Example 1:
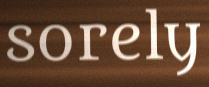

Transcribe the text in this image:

sorely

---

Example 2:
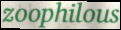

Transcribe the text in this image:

zoophilous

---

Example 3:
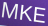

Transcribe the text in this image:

MKE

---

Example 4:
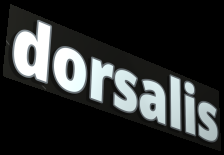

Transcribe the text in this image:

dorsalis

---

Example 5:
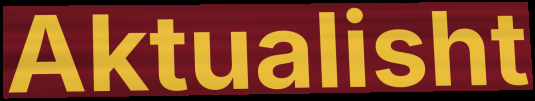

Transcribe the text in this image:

Aktualisht